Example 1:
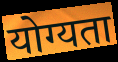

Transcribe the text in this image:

योग्‍यता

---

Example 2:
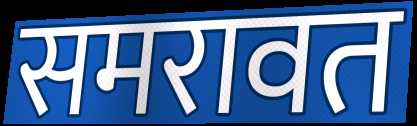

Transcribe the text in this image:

समरावत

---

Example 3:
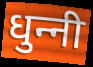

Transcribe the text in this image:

धुन्नी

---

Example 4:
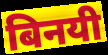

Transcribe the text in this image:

बिनयी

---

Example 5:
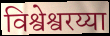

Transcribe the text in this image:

विश्वेश्वरय्या